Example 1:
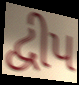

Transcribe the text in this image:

દ્વીપ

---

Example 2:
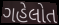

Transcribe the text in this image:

ગહેલોત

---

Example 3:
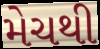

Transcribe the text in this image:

મેચથી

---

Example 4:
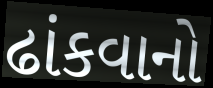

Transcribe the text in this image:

ઢાંકવાનો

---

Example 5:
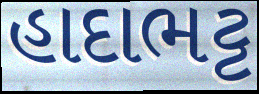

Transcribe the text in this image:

હાદાભટ્ટ